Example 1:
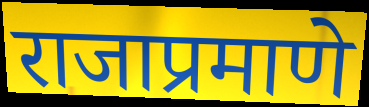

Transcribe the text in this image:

राजाप्रमाणे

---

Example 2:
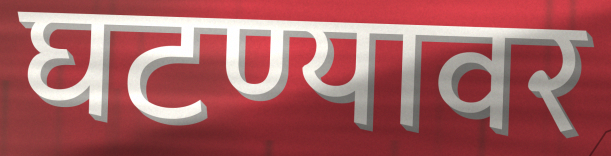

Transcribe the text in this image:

घटण्यावर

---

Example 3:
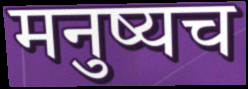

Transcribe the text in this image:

मनुष्यच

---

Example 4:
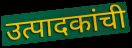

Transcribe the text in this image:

उत्पादकांची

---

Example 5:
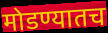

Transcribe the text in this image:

मोडण्यातच